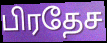
பிரதேச